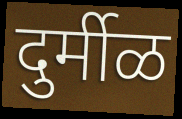
दुर्मीळ